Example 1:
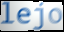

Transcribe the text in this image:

lejo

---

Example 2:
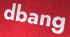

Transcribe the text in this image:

dbang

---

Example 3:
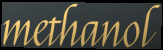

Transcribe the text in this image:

methanol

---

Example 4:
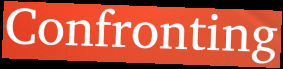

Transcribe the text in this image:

Confronting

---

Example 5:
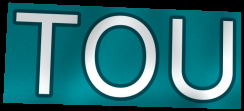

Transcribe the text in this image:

TOU